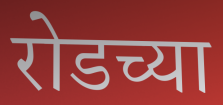
रोडच्या